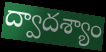
ద్వాదశ్యాం